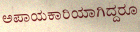
ಅಪಾಯಕಾರಿಯಾಗಿದ್ದರೂ